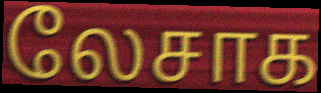
லேசாக